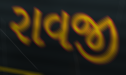
રાવજી